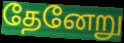
தேனேறு